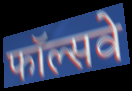
फॉल्सवे